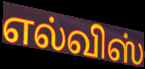
எல்விஸ்